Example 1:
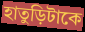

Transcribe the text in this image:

হাতুড়িটাকে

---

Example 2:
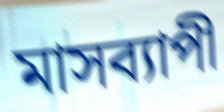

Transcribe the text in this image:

মাসব্যাপী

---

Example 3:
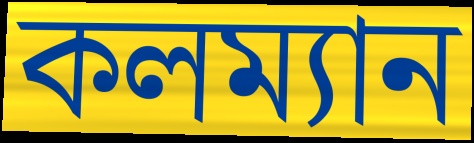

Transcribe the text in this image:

কলম্যান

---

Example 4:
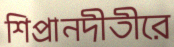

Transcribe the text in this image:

শিপ্রানদীতীরে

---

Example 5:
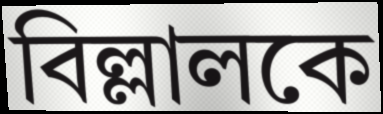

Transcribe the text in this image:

বিল্লালকে